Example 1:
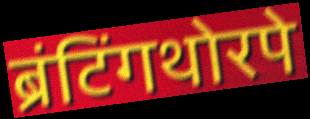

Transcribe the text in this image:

ब्रंटिंगथोरपे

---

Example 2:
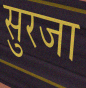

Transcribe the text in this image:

सुरजा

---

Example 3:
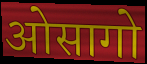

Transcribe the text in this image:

ओसागो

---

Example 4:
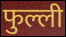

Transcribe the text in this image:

फुल्ली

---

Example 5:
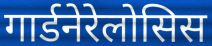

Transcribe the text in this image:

गार्डनेरेलोसिस